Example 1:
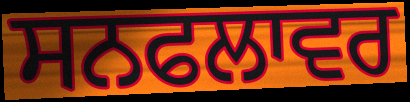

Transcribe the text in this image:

ਸਨਫਲਾਵਰ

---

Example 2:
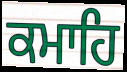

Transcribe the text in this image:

ਕਮਾਹਿ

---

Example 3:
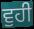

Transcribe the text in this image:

ਵੁਹੀ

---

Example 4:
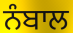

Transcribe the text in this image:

ਨੰਬਾਲ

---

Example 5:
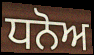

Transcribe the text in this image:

ਧਨੋਅ